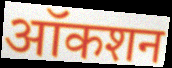
ऑकशन